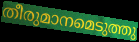
തീരുമാനമെടുത്തു